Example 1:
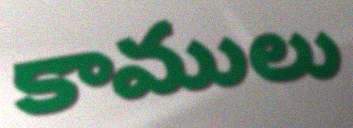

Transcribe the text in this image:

కాములు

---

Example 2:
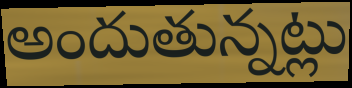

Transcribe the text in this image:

అందుతున్నట్లు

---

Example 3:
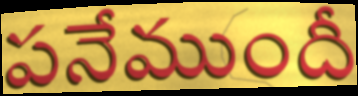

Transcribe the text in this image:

పనేముందీ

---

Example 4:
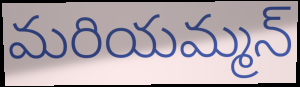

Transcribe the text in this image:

మరియమ్మన్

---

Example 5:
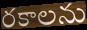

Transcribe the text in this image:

రకాలను